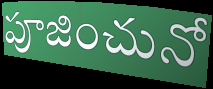
పూజించునో